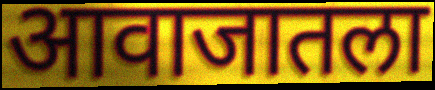
आवाजातला